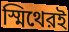
স্মিথেরই